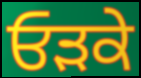
ਓੜਕੇ